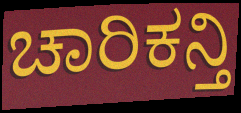
ಚಾರಿಕನ್ತಿ